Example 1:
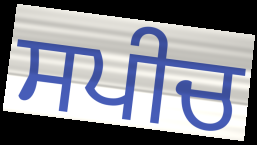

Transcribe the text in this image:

ਸਪੀਚ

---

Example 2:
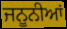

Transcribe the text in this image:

ਜਨੂਨੀਆਂ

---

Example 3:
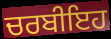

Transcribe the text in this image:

ਚਰਬੀਇਹ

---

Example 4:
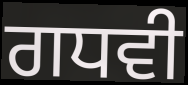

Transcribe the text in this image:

ਗਧਵੀ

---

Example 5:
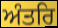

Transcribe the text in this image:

ਅੰਤਰਿ